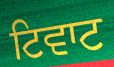
ਟਿਵਾਟ